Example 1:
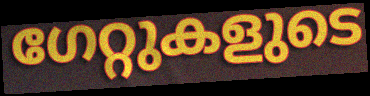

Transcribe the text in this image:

ഗേറ്റുകളുടെ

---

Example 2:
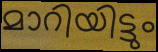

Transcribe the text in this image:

മാറിയിട്ടും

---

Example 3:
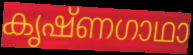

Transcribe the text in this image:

കൃഷ്ണഗാഥാ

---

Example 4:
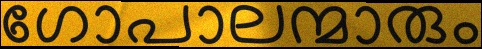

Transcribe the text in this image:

ഗോപാലന്മാരും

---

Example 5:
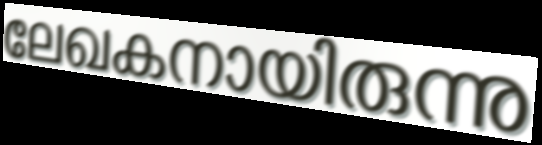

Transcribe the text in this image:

ലേഖകനായിരുന്നു